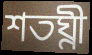
শতঘ্নী